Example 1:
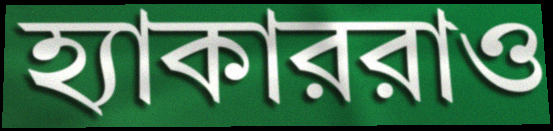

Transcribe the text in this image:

হ্যাকাররাও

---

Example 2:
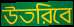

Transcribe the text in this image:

উতরিবে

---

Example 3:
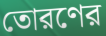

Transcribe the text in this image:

তোরণের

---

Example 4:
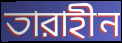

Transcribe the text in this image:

তারাহীন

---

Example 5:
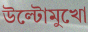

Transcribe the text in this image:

উল্টোমুখো